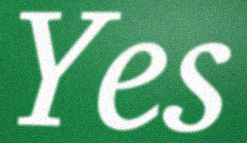
Yes